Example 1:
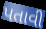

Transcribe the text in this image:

પતાવી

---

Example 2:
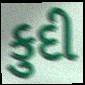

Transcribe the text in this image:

કુદી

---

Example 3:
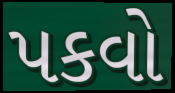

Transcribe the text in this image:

પકવો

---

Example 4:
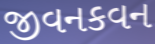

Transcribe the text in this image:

જીવનકવન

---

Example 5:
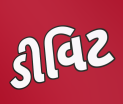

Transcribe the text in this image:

ડીવિટ